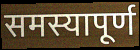
समस्यापूर्ण